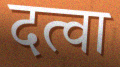
दत्वा